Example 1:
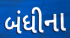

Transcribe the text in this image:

બંધીના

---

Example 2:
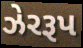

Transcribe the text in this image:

ઝેરરૂપ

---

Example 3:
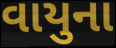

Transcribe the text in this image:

વાયુના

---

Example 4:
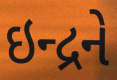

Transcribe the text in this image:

ઇન્દ્રને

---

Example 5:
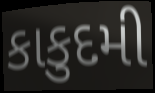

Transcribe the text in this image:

કાકુદમી